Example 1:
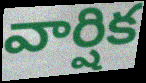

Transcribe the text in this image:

వార్షిక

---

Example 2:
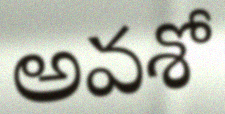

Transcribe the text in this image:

అవశో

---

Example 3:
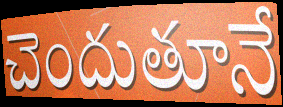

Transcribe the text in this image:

చెందుతూనే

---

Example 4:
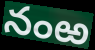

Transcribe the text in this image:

నంఱ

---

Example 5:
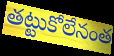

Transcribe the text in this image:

తట్టుకోలేనంత